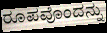
ರೂಪವೊಂದನ್ನು